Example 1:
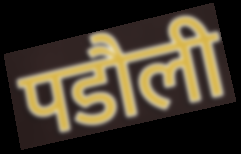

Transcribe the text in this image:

पडौली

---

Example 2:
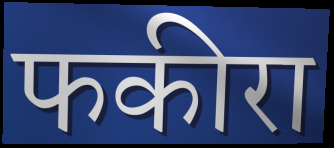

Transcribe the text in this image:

फकीरा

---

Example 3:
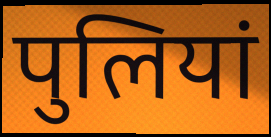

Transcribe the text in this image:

पुलियां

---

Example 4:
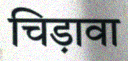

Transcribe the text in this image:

चिड़ावा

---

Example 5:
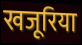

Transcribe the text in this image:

खजूरिया